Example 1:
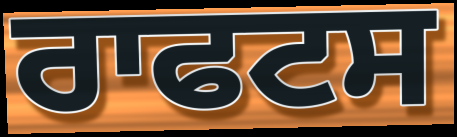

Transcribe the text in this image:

ਰਾਫਟਸ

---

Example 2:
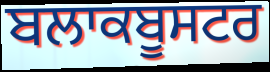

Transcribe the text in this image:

ਬਲਾਕਬੂਸਟਰ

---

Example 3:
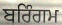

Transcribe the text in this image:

ਬਰਿੰਗਮ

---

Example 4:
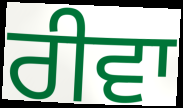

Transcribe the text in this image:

ਰੀਵਾ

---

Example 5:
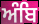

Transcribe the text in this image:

ਅੰਬਿ